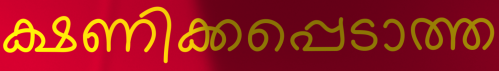
ക്ഷണിക്കപ്പെടാത്ത